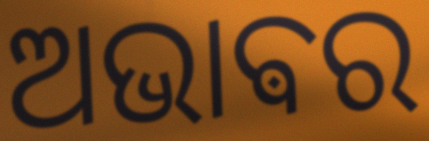
ଅଭାଵର